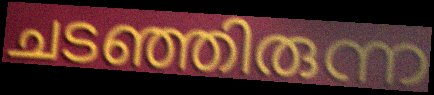
ചടഞ്ഞിരുന്ന